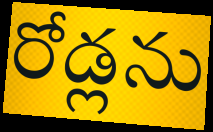
రోడ్లను